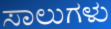
ಸಾಲುಗಳು